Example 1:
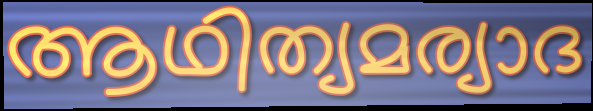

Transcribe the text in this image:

ആഥിത്യമര്യാദ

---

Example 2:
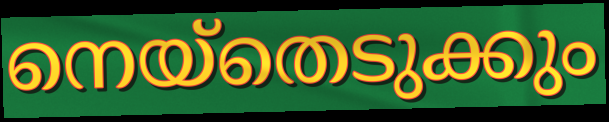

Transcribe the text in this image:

നെയ്തെടുക്കും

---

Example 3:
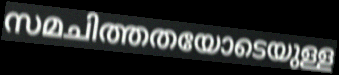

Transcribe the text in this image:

സമചിത്തതയോടെയുള്ള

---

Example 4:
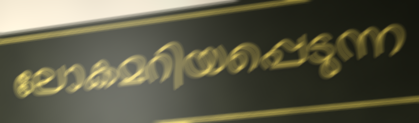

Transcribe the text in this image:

ലോകമറിയപ്പെടുന്ന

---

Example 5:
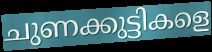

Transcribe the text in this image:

ചുണക്കുട്ടികളെ